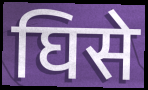
घिसे